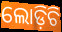
ଲୋଡ଼ିଚି